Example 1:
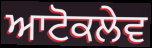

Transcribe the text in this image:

ਆਟੋਕਲੇਵ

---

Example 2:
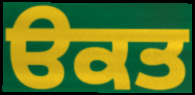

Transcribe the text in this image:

ੳਕਤ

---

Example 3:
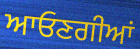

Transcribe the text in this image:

ਆਓਣਗੀਆਂ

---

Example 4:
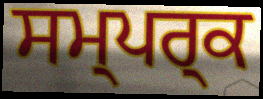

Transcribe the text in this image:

ਸਮ੍ਪਰ੍ਕ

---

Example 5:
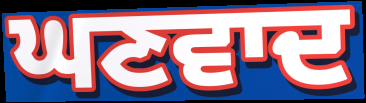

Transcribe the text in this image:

ਘਣਵਾਦ